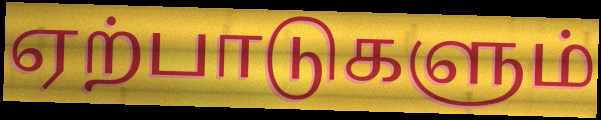
ஏற்பாடுகளும்